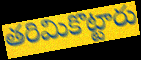
తరిమికొట్టారు